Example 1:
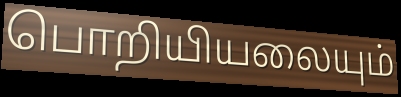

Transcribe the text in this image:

பொறியியலையும்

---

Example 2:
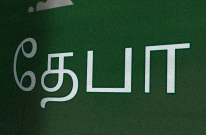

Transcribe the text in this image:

தேபா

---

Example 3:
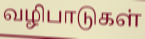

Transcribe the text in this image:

வழிபாடுகள்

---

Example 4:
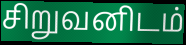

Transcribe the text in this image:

சிறுவனிடம்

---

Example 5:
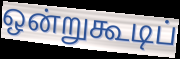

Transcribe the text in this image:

ஒன்றுகூடிப்